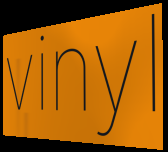
vinyl